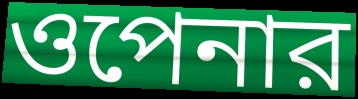
ওপেনার